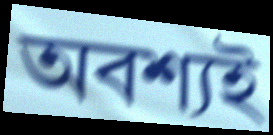
অবশ্যই